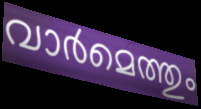
വാർമെത്തും